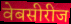
वेबसीरीज